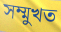
সম্মুখত